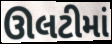
ઊલટીમાં